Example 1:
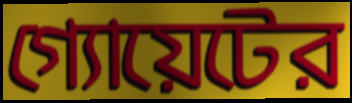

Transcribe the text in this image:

গ্যোয়েটের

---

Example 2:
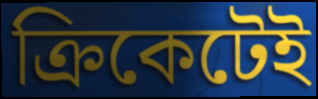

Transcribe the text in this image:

ক্রিকেটেই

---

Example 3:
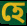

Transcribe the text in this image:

হে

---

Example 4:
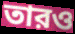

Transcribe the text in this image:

তারও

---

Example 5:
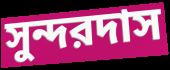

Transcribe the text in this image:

সুন্দরদাস